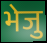
भेजु